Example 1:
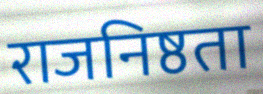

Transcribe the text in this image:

राजनिष्ठता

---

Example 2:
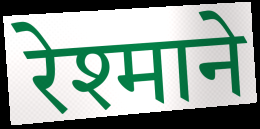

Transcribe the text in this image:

रेश्माने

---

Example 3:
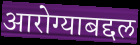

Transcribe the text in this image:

आरोग्याबद्दल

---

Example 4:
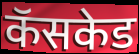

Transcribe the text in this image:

कॅसकेड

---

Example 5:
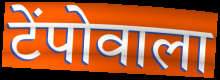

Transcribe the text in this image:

टेंपोवाला